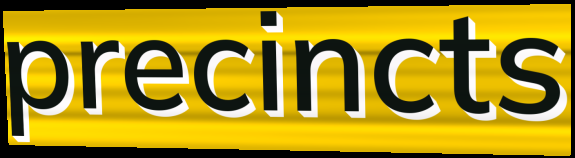
precincts